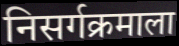
निसर्गक्रमाला